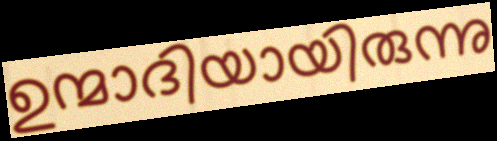
ഉന്മാദിയായിരുന്നു